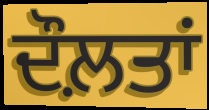
ਦੌਲ਼ਤਾਂ